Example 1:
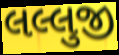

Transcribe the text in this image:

લલ્લુજી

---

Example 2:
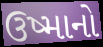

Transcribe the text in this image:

ઉષ્માનો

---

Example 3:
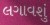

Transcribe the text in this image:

લગાવશું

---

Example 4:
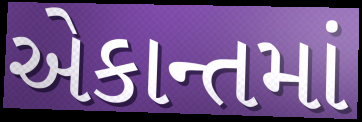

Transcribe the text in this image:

એકાન્તમાં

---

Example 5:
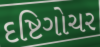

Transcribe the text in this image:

દષ્ટિગોચર